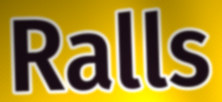
Ralls